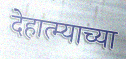
देहात्म्याच्या